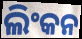
ଲିଂକନ